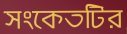
সংকেতটির